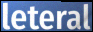
leteral